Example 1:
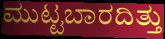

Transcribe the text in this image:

ಮುಟ್ಟಬಾರದಿತ್ತು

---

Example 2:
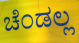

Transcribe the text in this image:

ಚೆಂಡಲ್ಲ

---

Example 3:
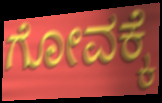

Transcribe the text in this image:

ಗೋವಕ್ಕೆ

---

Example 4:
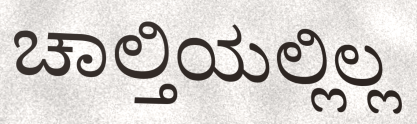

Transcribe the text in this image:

ಚಾಲ್ತಿಯಲ್ಲಿಲ್ಲ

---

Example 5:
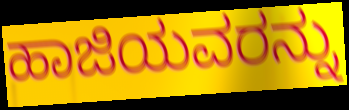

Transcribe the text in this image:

ಹಾಜಿಯವರನ್ನು